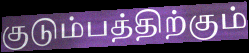
குடும்பத்திற்கும்